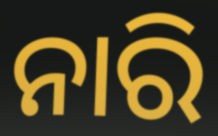
ନାରି